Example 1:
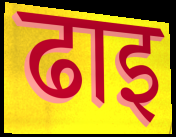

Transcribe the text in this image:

ढाइ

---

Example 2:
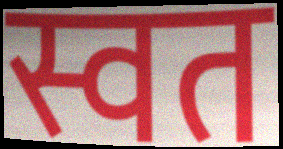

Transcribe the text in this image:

स्वत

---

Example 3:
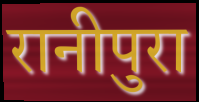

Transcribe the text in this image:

रानीपुरा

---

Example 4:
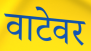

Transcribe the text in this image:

वाटेवर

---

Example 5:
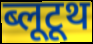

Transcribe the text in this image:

ब्लूटूथ